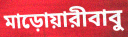
মাড়োয়ারীবাবু